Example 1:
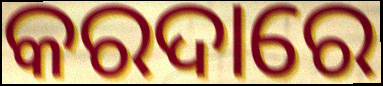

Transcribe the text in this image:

କରଦାରେ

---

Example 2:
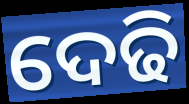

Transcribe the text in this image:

ଦେଢି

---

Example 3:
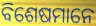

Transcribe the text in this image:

ବିଶେଷମାନେ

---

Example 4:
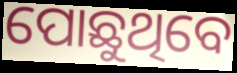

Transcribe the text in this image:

ପୋଛୁଥିବେ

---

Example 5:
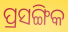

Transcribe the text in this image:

ପ୍ରସଙ୍ଗିକ